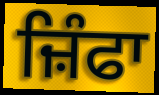
ਜ਼ਿੰਫਾ